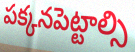
పక్కనపెట్టాల్సి